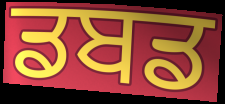
ਡਬਡ